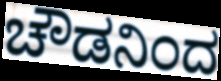
ಚೌಡನಿಂದ